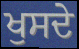
ਖੁਸਦੇ